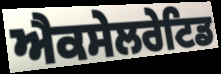
ਐਕਸੇਲਰੇਟਿਡ